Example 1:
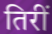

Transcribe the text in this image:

तिरीं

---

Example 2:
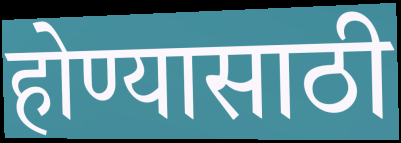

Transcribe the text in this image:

होण्यासाठी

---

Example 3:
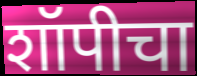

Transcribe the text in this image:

शॉपीचा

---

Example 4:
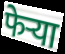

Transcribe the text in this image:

फेर्‍या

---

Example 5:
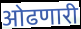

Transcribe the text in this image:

ओढणारी